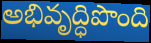
అభివృద్ధిపొంది